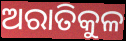
ଅରାତିକୁଳ